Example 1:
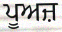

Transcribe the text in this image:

ਪੂਅਜ਼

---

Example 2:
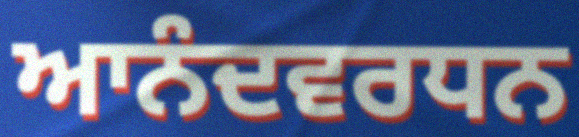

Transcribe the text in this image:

ਆਨੰਦਵਰਧਨ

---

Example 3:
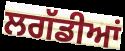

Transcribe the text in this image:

ਲਗੱਡੀਆਂ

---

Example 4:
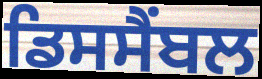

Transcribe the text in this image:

ਡਿਸਸੈਂਬਲ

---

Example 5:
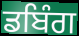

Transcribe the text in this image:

ਡਬਿੰਗ